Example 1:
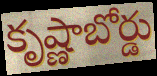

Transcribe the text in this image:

కృష్ణాబోర్డు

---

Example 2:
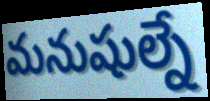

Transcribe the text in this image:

మనుషుల్నే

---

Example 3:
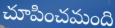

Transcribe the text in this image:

చూపించమంది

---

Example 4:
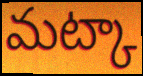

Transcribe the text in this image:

మట్కా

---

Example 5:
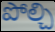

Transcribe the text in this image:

పోల్చి